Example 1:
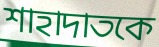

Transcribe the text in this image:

শাহাদাতকে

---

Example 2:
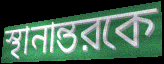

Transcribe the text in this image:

স্থানান্তরকে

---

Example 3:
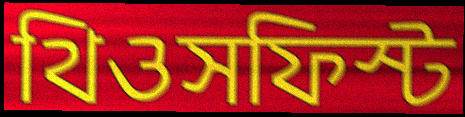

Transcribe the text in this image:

থিওসফিস্ট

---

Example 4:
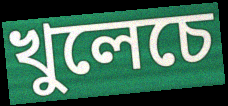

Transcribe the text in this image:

খুলেচে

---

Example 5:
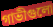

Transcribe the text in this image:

গাভীগুলো